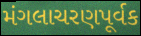
મંગલાચરણપૂર્વક